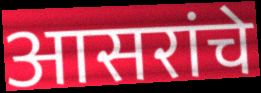
आसरांचे